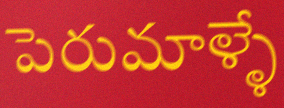
పెరుమాళ్ళే